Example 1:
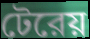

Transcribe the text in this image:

টেরেয়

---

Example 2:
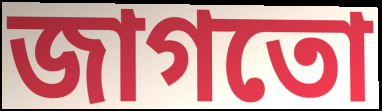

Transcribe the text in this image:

জাগতো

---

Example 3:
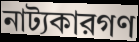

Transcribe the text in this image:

নাট্যকারগণ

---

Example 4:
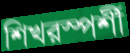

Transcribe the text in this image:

শিখরস্পর্শী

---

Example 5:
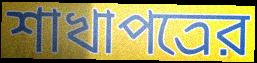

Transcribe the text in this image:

শাখাপত্রের